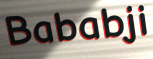
Bababji